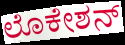
ಲೊಕೇಶನ್